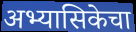
अभ्यासिकेचा